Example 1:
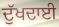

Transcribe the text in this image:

ਦੁੱਖਦਾਈ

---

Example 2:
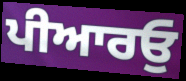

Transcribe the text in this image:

ਪੀਆਰਓੁ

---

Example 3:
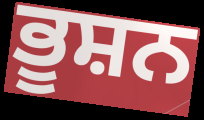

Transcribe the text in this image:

ਭੂਸ਼ਨ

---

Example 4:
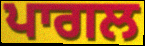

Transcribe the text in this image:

ਪਾਗਲ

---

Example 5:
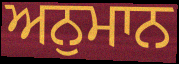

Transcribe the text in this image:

ਅਨੁਮਾਨ